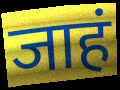
जाहं